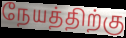
நேயத்திற்கு